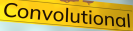
Convolutional